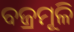
ବଜ୍ରମୂଳି